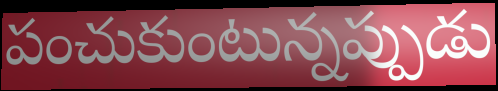
పంచుకుంటున్నప్పుడు